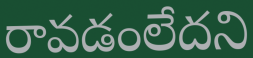
రావడంలేదని